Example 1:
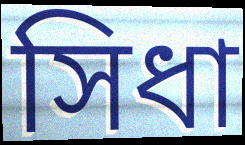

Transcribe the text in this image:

সিধা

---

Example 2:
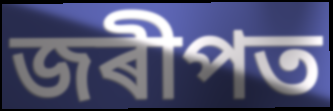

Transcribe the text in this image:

জৰীপত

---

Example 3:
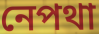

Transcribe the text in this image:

নেপথা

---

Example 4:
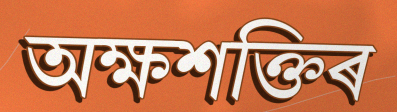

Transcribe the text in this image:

অক্ষশক্তিৰ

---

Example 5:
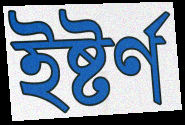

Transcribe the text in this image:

ইষ্টৰ্ণ